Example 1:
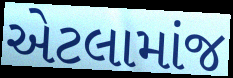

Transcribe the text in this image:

એટલામાંજ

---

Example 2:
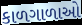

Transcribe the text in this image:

કાળગાળાઓ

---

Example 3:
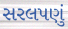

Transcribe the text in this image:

સરલપણું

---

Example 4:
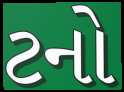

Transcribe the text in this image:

ટનો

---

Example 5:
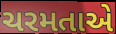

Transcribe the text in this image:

ચરમતાએ